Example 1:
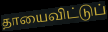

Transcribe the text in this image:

தாயைவிட்டுப்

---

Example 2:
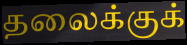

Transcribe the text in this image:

தலைக்குக்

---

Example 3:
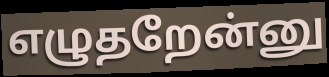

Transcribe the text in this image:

எழுதறேன்னு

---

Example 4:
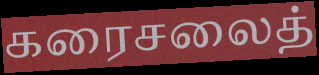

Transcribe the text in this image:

கரைசலைத்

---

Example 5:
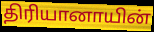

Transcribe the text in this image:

திரியானாயின்